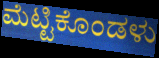
ಮೆಟ್ಟಿಕೊಂಡಳು